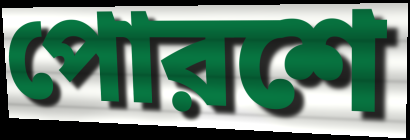
পোরশে